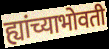
ह्यांच्याभोवती